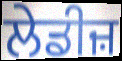
ਲੇਡੀਜ਼